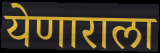
येणाराला